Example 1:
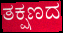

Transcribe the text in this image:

ತಕ್ಷಣದ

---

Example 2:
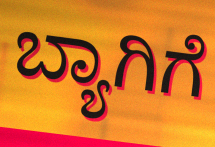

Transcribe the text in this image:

ಬ್ಯಾಗಿಗೆ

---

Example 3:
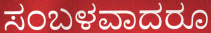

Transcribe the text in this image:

ಸಂಬಳವಾದರೂ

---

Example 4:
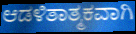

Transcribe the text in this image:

ಆಡಳಿತಾತ್ಮಕವಾಗಿ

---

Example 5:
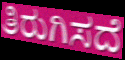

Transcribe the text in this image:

ತಿರುಗಿಸದೆ